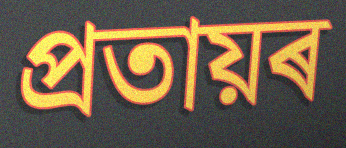
প্ৰতায়ৰ